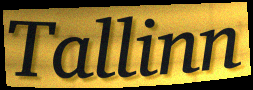
Tallinn